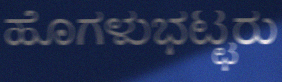
ಹೊಗಳುಭಟ್ಟರು